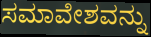
ಸಮಾವೇಶವನ್ನು